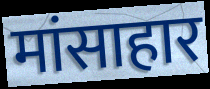
मांसाहार